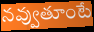
నవ్వుతూంటే